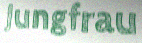
Jungfrau